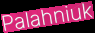
Palahniuk